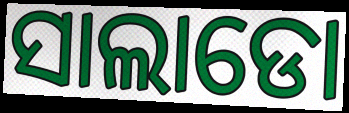
ସାଲାଡୋ